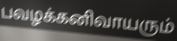
பவழக்கனிவாயரும்